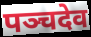
पञ्चदेव